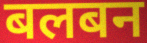
बलबन